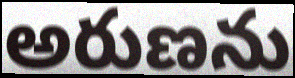
అరుణను